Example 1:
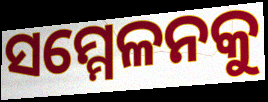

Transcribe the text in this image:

ସମ୍ମେଳନକୁ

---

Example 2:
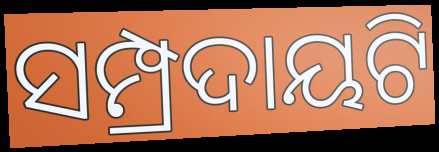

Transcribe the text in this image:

ସମ୍ପ୍ରଦାୟଟି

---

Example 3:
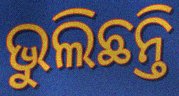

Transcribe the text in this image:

ଭୁଲିଛନ୍ତି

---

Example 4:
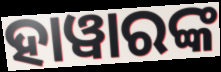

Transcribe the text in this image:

ହାୱାରଙ୍କ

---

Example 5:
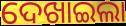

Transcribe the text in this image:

ଦେଖାଇଲା